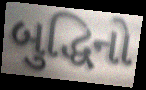
બુદ્ધિનો